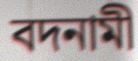
বদনামী